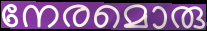
നേരമൊരു